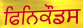
ਫਿਨਿਕੌਡਸ